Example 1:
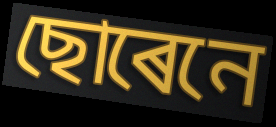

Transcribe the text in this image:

ছোৰেনে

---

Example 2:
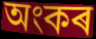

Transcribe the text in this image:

অংকৰ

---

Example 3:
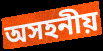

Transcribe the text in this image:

অসহনীয়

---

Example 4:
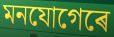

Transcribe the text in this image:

মনযোগেৰে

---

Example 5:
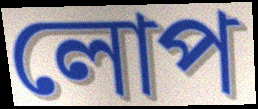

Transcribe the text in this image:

লোপ